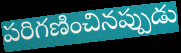
పరిగణించినప్పుడు